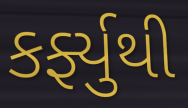
કર્ફ્યુથી